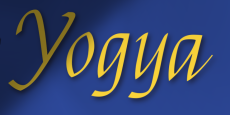
Yogya